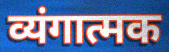
व्यंगात्मक